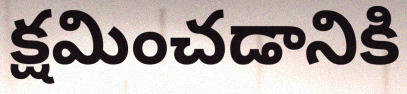
క్షమించడానికి